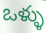
ఒళ్ళు